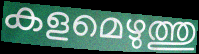
കളമെഴുത്തു